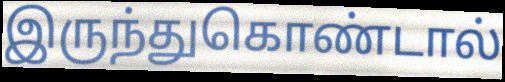
இருந்துகொண்டால்